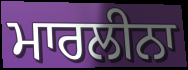
ਮਾਰਲੀਨਾ